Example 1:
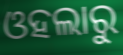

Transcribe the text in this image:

ଓହଲାରୁ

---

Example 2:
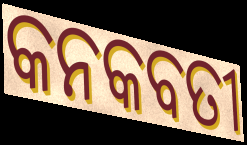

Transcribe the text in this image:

କନକବତୀ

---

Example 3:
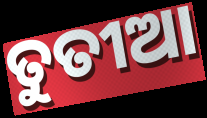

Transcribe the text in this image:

ତୁତୀଆ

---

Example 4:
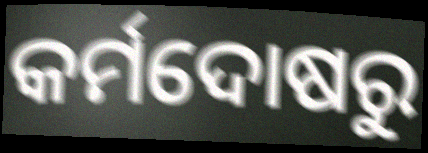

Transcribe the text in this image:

କର୍ମଦୋଷରୁ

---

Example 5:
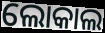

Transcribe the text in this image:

ଲୋକାଲ